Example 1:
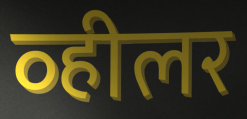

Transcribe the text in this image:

व्हीलर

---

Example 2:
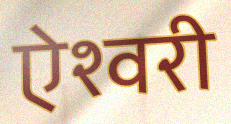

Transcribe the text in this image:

ऐश्वरी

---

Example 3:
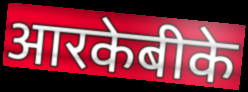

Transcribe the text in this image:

आरकेबीके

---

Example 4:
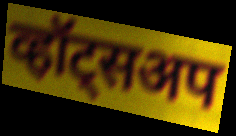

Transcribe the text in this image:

व्हॉट्सअप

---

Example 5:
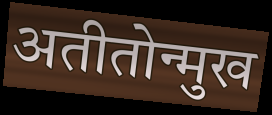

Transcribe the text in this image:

अतीतोन्मुख